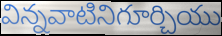
విన్నవాటినిగూర్చియు